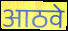
आठवे